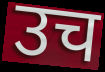
उच